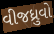
વીજધ્રુવો